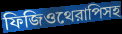
ফিজিওথেরাপিসহ